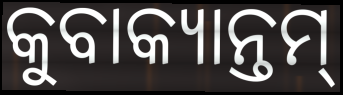
କୁବାକ୍ୟାନ୍ତମ୍